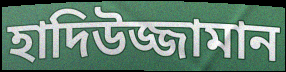
হাদিউজ্জামান